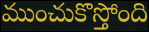
ముంచుకొస్తోంది